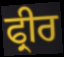
ਫ੍ਰੀਰ